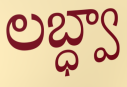
లబ్ధ్వా